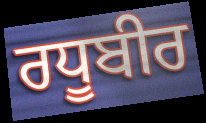
ਰਧੂਬੀਰ